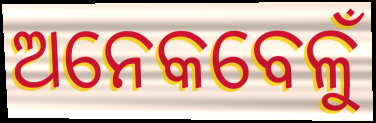
ଅନେକବେଳୁଁ